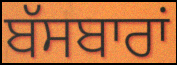
ਬੱਸਬਾਰਾਂ